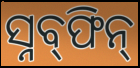
ସ୍ନବ୍‍ଫିନ୍